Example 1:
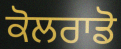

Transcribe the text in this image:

ਕੋਲਰਾਡੋ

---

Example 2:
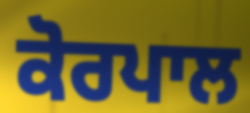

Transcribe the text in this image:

ਕੋਰਪਾਲ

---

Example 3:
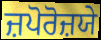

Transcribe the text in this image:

ਜ਼ਪੋਰੋਜ਼ਯੇ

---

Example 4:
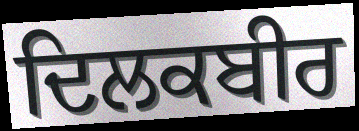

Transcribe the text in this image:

ਦਿਲਕਬੀਰ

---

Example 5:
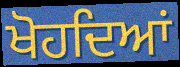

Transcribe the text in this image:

ਖੋਹਦਿਆਂ